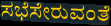
ಸಭೆಸೇರುವಂತೆ